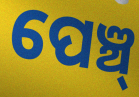
ପେଞ୍ଚ୍